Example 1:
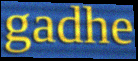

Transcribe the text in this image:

gadhe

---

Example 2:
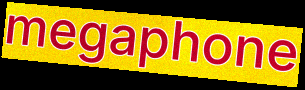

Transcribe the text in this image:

megaphone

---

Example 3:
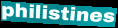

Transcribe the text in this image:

philistines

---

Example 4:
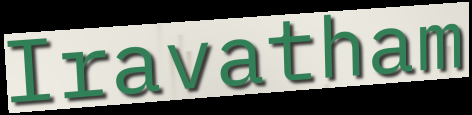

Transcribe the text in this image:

Iravatham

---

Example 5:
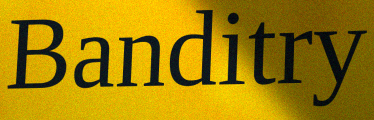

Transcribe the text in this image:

Banditry